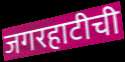
जगरहाटीची